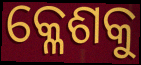
କ୍ଳେଶକୁ